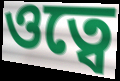
ওত্বে